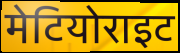
मेटियोराइट